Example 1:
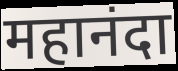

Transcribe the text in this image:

महानंदा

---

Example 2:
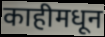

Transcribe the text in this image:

काहीमधून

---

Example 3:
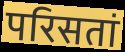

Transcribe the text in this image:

परिसतां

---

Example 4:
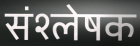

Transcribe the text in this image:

संश्लेषक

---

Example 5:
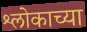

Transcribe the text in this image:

श्लोकाच्या